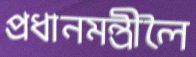
প্ৰধানমন্ত্ৰীলৈ